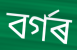
বৰ্গৰ